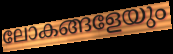
ലോകങ്ങളേയും